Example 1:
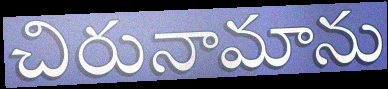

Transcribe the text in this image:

చిరునామాను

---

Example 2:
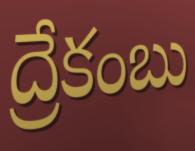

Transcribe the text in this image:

ద్రేకంబు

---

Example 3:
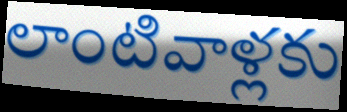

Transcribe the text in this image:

లాంటివాళ్లకు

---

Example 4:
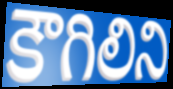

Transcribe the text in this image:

కౌగిలిని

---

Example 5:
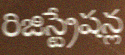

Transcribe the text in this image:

రిజిస్ట్రేషన్ల